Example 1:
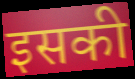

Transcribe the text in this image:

इसकी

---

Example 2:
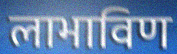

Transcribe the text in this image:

लाभाविण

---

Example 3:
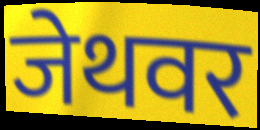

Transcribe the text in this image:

जेथवर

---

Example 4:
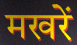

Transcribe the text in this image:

मखरें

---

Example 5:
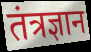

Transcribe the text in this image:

तंत्रज्ञान